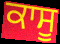
ਕਾਸੂ